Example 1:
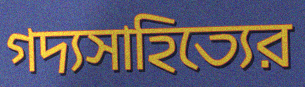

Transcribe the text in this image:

গদ্যসাহিত্যের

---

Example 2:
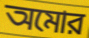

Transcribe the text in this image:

অমোর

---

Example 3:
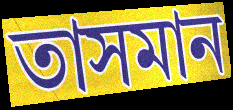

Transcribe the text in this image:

তাসমান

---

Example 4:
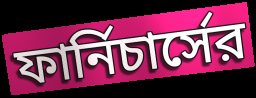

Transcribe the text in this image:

ফার্নিচার্সের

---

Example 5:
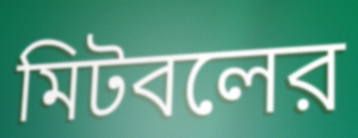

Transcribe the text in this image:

মিটবলের